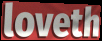
loveth